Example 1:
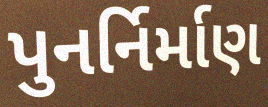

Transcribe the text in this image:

પુનર્નિર્માણ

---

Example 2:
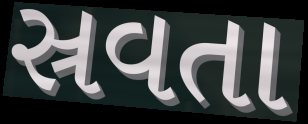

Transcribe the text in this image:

સ્રવતા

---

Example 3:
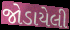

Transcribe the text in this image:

જોડાયેલી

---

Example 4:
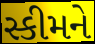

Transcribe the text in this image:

સ્કીમને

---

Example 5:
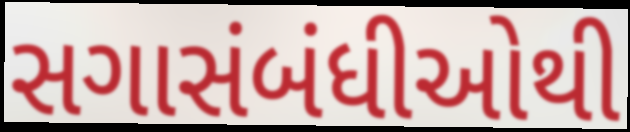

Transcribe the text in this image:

સગાસંબંધીઓથી